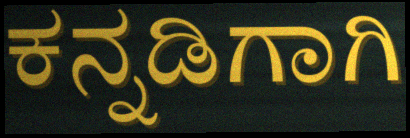
ಕನ್ನಡಿಗಾಗಿ